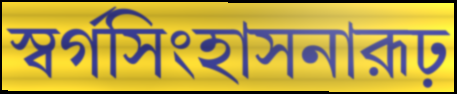
স্বর্গসিংহাসনারূঢ়